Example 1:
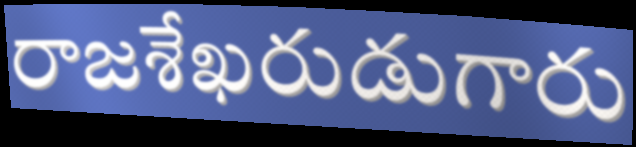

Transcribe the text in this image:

రాజశేఖరుడుగారు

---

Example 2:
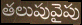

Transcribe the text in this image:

తలుపువైపు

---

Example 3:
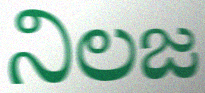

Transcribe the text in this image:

నిలజ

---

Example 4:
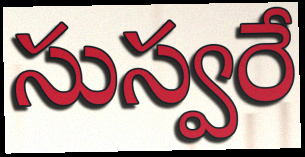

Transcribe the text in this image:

సుస్వరే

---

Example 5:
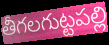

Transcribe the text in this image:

తీగలగుట్టపల్లి